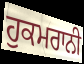
ਹੁਕਮਰਾਨੀ